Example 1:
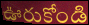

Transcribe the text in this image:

ఊరుకోండి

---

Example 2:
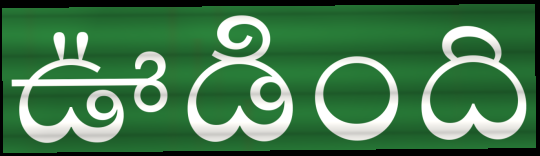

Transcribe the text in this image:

ఊడింది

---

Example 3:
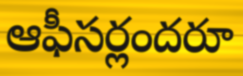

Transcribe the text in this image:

ఆఫీసర్లందరూ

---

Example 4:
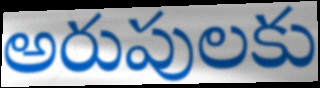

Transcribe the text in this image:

అరుపులకు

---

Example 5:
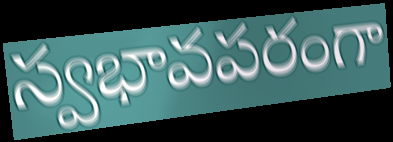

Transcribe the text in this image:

స్వభావపరంగా